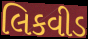
લિકવીડ